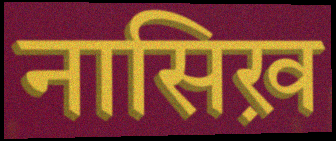
नासिख़